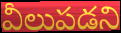
వీలుపడని